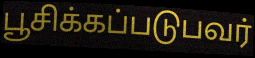
பூசிக்கப்படுபவர்